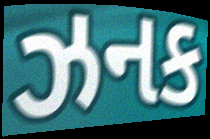
ઝનક